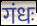
गंधः